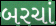
બરચાં